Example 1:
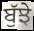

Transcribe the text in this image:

ਬੁੱਝੇ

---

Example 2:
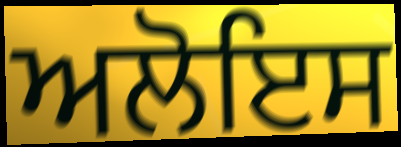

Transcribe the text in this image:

ਅਲੋਇਸ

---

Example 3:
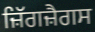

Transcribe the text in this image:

ਜ਼ਿੱਗਜ਼ੈਗਸ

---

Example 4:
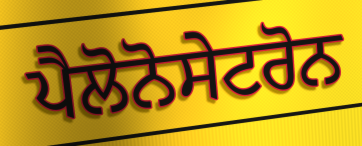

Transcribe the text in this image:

ਪੈਲੋਨੋਸੇਟਰੋਨ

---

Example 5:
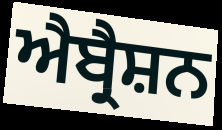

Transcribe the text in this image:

ਐਬ੍ਰੈਸ਼ਨ